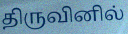
திருவினில்